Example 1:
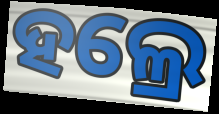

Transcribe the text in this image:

ହଲ୍ରେ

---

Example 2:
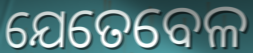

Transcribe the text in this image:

ଯେତେବେଳ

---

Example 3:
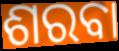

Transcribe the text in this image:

ଶରବା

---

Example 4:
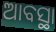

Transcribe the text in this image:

ଆବସ୍ଥା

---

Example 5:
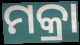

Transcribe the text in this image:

ମକ୍ରା